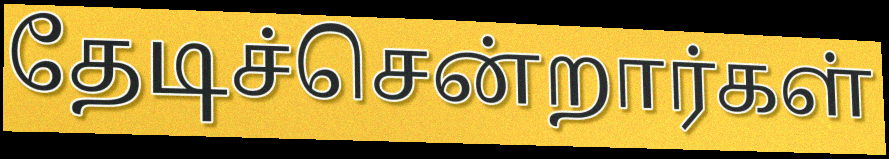
தேடிச்சென்றார்கள்